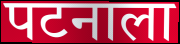
पटनाला